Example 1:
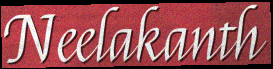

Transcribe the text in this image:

Neelakanth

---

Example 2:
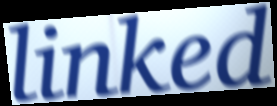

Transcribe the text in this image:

linked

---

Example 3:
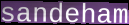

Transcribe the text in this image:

sandeham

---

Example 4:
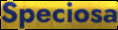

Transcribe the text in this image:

Speciosa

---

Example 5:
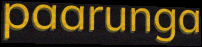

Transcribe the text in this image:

paarunga